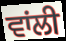
ਵਾਂਲੀ